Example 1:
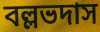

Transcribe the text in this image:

বল্লভদাস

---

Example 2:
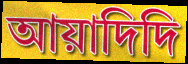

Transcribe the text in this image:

আয়াদিদি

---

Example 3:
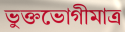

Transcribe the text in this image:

ভুক্তভোগীমাত্র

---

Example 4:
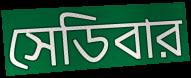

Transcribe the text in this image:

সেডিবার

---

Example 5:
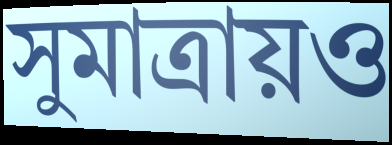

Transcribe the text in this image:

সুমাত্রায়ও